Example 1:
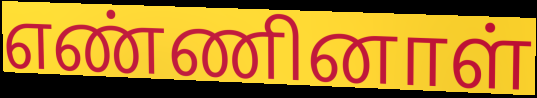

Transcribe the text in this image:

எண்ணினாள்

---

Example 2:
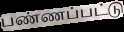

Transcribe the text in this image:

பண்ணப்பட்டு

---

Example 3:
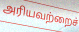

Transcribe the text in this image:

அரியவற்றைச்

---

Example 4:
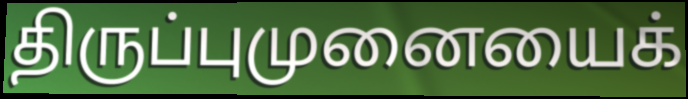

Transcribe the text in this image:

திருப்புமுனையைக்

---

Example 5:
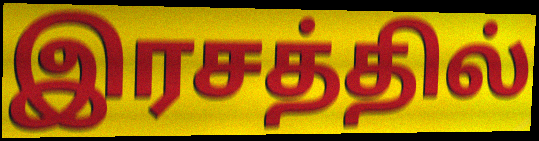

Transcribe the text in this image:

இரசத்தில்